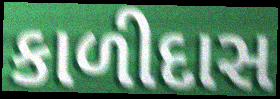
કાળીદાસ